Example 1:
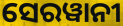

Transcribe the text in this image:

ସେରୱାନୀ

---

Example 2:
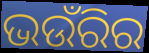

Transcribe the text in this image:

ଭଉଁରିର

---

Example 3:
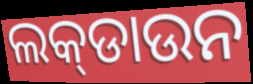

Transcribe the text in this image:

ଲକ୍‍ଡାଉନ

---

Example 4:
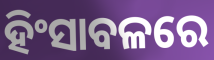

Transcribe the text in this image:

ହିଂସାବଳରେ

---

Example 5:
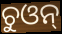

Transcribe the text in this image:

ଚୁଓନ୍